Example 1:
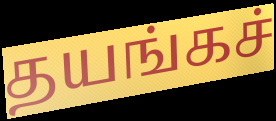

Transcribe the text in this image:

தயங்கச்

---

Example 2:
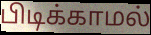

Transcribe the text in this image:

பிடிக்காமல்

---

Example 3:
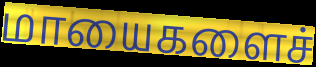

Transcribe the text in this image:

மாயைகளைச்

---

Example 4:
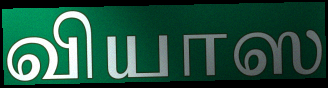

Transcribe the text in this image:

வியாஸ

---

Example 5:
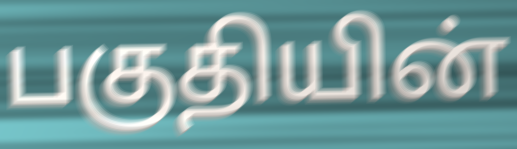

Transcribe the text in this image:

பகுதியின்